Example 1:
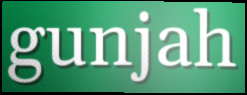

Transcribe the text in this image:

gunjah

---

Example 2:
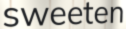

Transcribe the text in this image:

sweeten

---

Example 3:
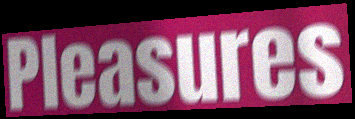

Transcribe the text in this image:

Pleasures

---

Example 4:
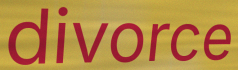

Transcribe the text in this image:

divorce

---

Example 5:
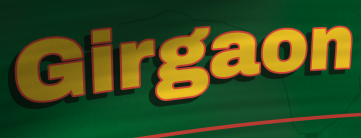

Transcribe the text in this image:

Girgaon